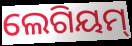
ଲେଗିୟମ୍